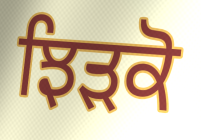
ਝਿੜਕੋ